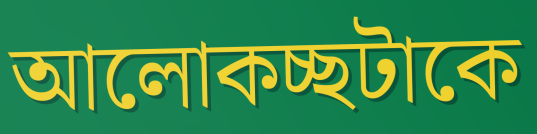
আলোকচ্ছটাকে